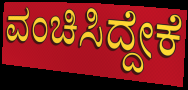
ವಂಚಿಸಿದ್ದೇಕೆ